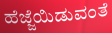
ಹೆಜ್ಜೆಯಿಡುವಂತೆ